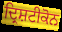
ਦ੍ਰਿਸ਼ਟੀਕੋਨ